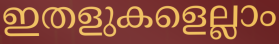
ഇതളുകളെല്ലാം